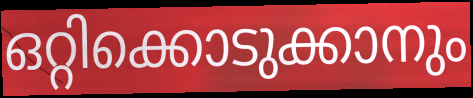
ഒറ്റിക്കൊടുക്കാനും